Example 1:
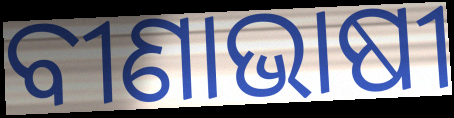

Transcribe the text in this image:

ବୀଣାଭାଷୀ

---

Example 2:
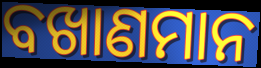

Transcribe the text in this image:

ବଖାଣମାନ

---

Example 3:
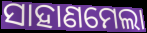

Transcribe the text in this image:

ସାହାଣମେଲା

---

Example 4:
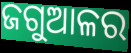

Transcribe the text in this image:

ଜଗୁଆଳର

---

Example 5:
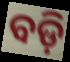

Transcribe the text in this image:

ବଡ଼ି